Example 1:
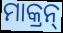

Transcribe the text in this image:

ମାକ୍ରନ୍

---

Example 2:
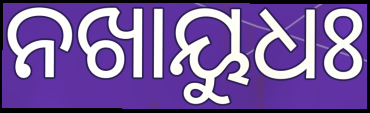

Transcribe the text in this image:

ନଖାୟୁଧଃ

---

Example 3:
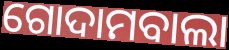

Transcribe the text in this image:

ଗୋଦାମବାଲା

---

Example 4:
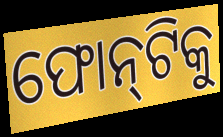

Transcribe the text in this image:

ଫୋନ୍‌ଟିକୁ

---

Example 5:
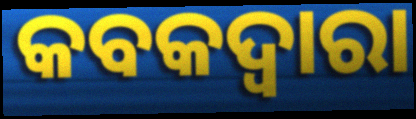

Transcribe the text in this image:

କବକଦ୍ୱାରା